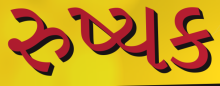
રુષ્યક